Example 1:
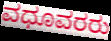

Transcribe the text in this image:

ವಧೂವರರು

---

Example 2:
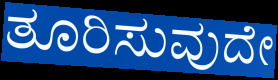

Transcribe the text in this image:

ತೂರಿಸುವುದೇ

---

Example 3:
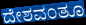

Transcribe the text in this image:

ದೇಶವಂತೂ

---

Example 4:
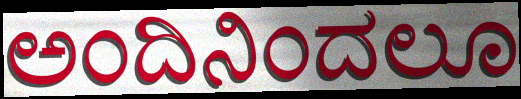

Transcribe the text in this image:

ಅಂದಿನಿಂದಲೂ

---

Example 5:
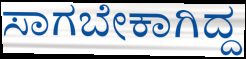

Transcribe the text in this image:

ಸಾಗಬೇಕಾಗಿದ್ದ